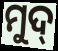
ମୁଦ୍